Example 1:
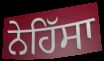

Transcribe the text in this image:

ਨੇਹਿੱਸਾ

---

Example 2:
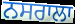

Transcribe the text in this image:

ਨਸਰਾਲਾ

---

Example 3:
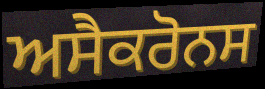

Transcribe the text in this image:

ਅਸੈਕਰੋਨਸ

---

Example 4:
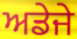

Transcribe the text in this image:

ਅਡੇਜੇ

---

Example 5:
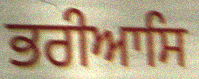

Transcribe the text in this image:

ਭਰੀਆਸਿ